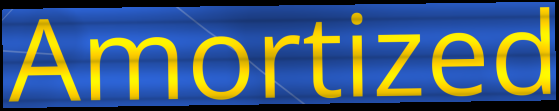
Amortized